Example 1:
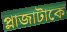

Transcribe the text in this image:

প্লাজাটাকে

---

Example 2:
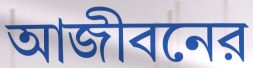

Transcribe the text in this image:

আজীবনের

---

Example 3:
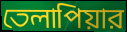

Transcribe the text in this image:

তেলাপিয়ার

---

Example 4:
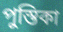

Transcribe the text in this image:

পুস্তিকা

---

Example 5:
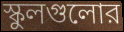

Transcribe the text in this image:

স্কুলগুলোর